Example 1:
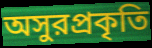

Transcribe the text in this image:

অসুরপ্রকৃতি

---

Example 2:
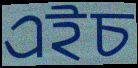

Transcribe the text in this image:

এইচ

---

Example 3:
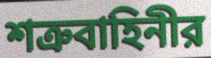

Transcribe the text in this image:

শত্রুবাহিনীর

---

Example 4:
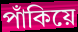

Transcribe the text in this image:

পাঁকিয়ে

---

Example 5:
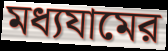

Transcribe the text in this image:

মধ্যযামের